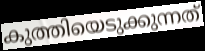
കുത്തിയെടുക്കുന്നത്